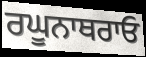
ਰਘੂਨਾਥਰਾਓ